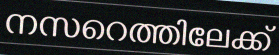
നസറെത്തിലേക്ക്